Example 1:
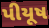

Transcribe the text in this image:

પીયૂષ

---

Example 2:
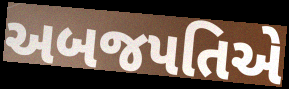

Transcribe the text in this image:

અબજપતિએ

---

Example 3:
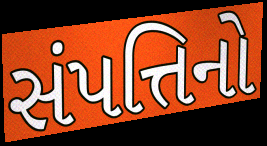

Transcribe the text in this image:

સંપત્તિનો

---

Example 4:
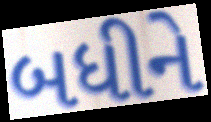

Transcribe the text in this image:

બધીને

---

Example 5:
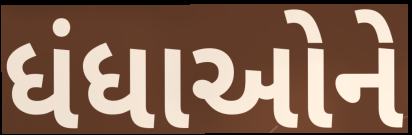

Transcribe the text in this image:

ધંધાઓને